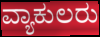
ವ್ಯಾಕುಲರು